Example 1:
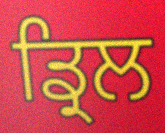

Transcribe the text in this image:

ਡ੍ਰਿਲ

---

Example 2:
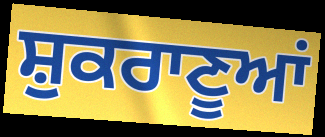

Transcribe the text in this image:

ਸ਼ੁਕਰਾਣੂਆਂ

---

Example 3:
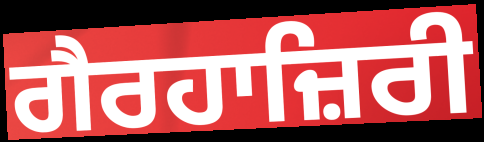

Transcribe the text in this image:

ਗੈਰਹਾਜ਼ਿਰੀ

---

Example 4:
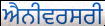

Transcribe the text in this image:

ਐਨੀਵਰਸਰੀ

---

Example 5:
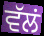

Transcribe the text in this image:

ਵੱਲਂ